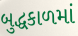
બુદ્ધકાળમાં